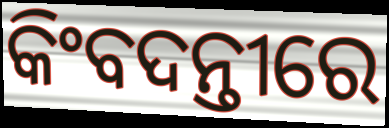
କିଂବଦନ୍ତୀରେ